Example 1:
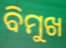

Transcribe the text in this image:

ବିମୁଖ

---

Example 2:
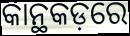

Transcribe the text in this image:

କାନ୍ଥକଡ଼ରେ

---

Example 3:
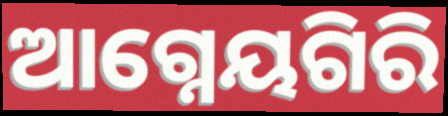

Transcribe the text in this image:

ଆଗ୍ନେୟଗିରି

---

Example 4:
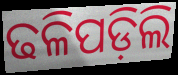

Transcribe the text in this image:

ଢଳିପଡ଼ିଲି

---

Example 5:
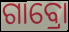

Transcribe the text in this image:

ଗାବ୍ରୋ